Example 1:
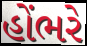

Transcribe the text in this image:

હોંભરે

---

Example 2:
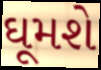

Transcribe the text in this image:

ઘૂમશે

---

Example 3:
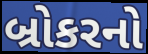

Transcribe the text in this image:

બ્રોકરનો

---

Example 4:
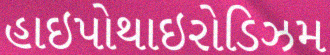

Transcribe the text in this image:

હાઇપોથાઇરોડિઝમ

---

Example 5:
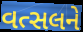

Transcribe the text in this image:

વત્સલને